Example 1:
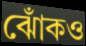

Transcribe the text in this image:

ঝোঁকও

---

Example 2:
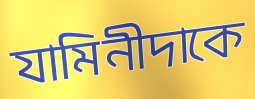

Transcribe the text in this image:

যামিনীদাকে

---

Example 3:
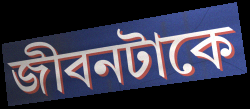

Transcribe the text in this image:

জীবনটাকে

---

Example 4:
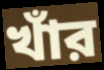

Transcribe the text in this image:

খাঁর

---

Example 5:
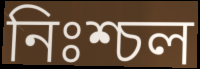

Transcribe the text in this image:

নিঃশ্চল